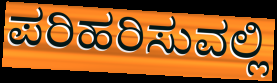
ಪರಿಹರಿಸುವಲ್ಲಿ